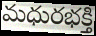
మధురభక్తి